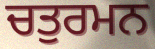
ਚਤੁਰਮਨ